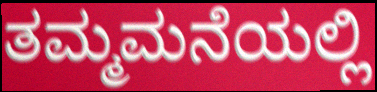
ತಮ್ಮಮನೆಯಲ್ಲಿ